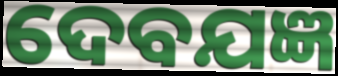
ଦେବଯଜ୍ଞ